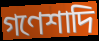
গণেশাদি